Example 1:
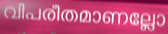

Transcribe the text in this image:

വിപരീതമാണല്ലോ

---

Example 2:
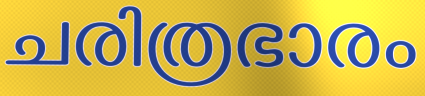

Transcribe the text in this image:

ചരിത്രഭാരം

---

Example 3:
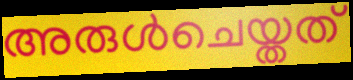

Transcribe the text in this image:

അരുൾചെയ്തത്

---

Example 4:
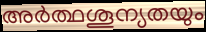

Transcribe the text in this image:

അർത്ഥശൂന്യതയും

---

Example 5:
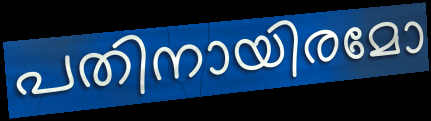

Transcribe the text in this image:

പതിനായിരമോ